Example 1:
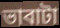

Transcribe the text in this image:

ভাবাটা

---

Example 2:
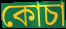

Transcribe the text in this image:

কোচা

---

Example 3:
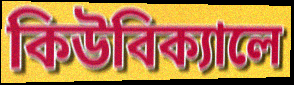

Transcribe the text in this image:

কিউবিক্যালে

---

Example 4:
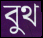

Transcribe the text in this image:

বুথ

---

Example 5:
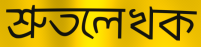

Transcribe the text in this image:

শ্রুতলেখক